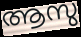
ആസു